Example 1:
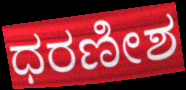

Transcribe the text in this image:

ಧರಣೀಶ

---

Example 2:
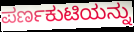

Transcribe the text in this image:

ಪರ್ಣಕುಟಿಯನ್ನು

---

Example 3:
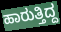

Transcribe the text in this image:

ಹಾರುತ್ತಿದ್ದ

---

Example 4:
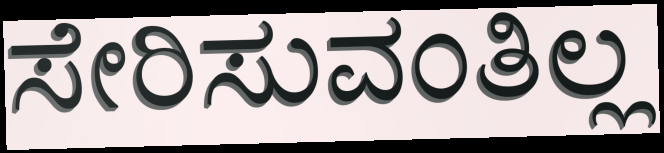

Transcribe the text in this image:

ಸೇರಿಸುವಂತಿಲ್ಲ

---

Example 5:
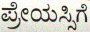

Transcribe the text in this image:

ಪ್ರೇಯಸ್ಸಿಗೆ